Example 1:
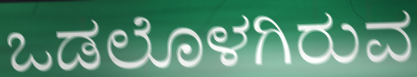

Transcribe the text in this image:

ಒಡಲೊಳಗಿರುವ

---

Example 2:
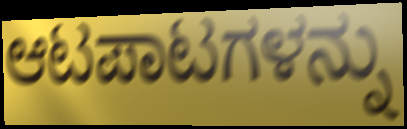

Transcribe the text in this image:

ಆಟಪಾಟಗಳನ್ನು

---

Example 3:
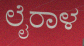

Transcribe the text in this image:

ಲೈರಾಳ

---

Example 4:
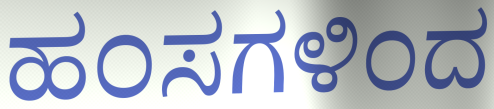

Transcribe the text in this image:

ಹಂಸಗಳಿಂದ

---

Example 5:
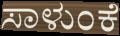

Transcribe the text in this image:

ಸಾಳುಂಕೆ